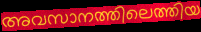
അവസാനത്തിലെത്തിയ